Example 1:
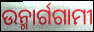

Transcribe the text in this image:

ଉନ୍ମାର୍ଗଗାମୀ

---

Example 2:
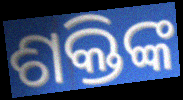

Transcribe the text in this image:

ଶକ୍ତିଙ୍କ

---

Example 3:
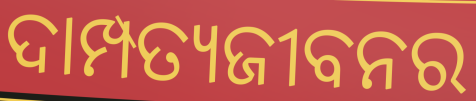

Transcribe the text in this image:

ଦାମ୍ପତ୍ୟଜୀବନର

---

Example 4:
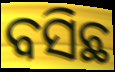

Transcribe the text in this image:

ବସିଛ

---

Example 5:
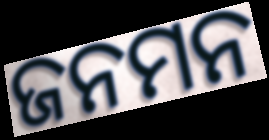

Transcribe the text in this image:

ଜନମନ